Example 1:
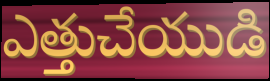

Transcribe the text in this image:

ఎత్తుచేయుడి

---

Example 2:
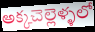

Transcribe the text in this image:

అక్కచెల్లెళ్ళలో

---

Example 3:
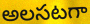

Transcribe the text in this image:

అలసటగా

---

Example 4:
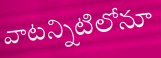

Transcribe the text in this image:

వాటన్నిటిలోనూ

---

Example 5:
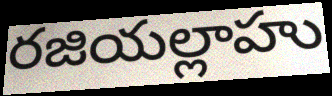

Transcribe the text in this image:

రజియల్లాహు